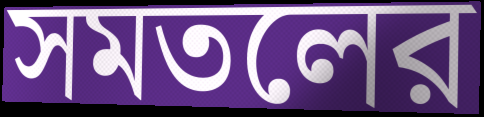
সমতলের